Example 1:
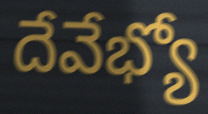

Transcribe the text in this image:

దేవేభ్యో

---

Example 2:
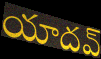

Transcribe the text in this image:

యాదవ్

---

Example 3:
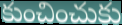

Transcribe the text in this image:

కుంచించుకు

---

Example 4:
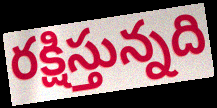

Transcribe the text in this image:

రక్షిస్తున్నది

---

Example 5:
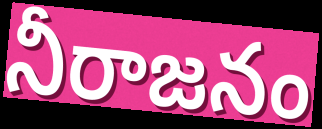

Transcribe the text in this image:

నీరాజనం